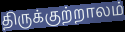
திருக்குற்றாலம்